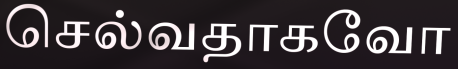
செல்வதாகவோ